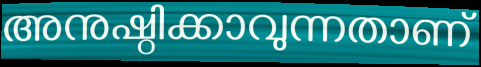
അനുഷ്ഠിക്കാവുന്നതാണ്